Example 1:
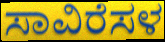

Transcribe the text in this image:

ಸಾವಿರೆಸಳ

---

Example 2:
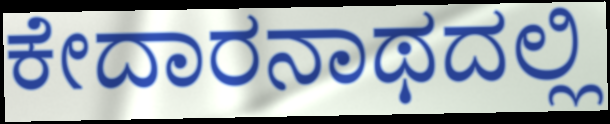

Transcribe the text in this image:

ಕೇದಾರನಾಥದಲ್ಲಿ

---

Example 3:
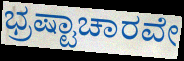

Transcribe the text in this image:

ಭ್ರಷ್ಟಾಚಾರವೇ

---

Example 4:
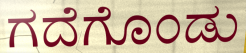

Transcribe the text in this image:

ಗದೆಗೊಂಡು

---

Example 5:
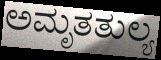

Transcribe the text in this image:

ಅಮೃತತುಲ್ಯ